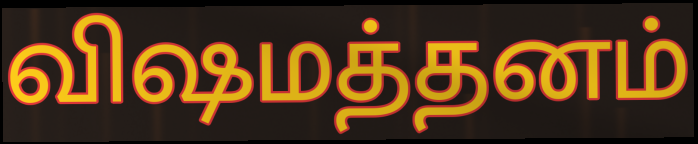
விஷமத்தனம்